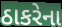
ઠાકરેના